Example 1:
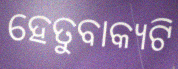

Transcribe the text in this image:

ହେତୁବାକ୍ୟଟି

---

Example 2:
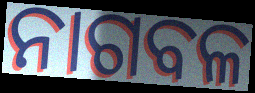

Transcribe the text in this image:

ନାଗବଳ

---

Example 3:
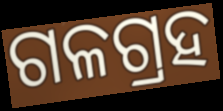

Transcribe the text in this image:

ଗଳଗ୍ରହ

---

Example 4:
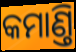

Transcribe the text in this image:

କମାଣ୍ତି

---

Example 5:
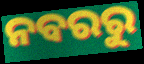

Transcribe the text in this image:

ନବରରୁ